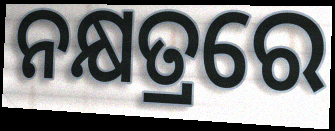
ନକ୍ଷତ୍ରରେ